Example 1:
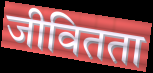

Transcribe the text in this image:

जीवितता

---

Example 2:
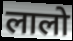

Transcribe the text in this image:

लालो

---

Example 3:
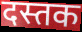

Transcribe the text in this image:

दस्तक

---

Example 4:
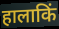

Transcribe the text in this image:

हालाकिं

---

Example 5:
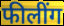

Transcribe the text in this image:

फीलींग